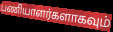
பணியாளர்களாகவும்